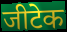
जीटेक